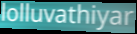
lolluvathiyar